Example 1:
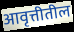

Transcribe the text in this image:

आवृत्तीतील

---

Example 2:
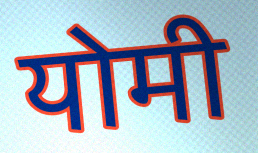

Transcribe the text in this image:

योमी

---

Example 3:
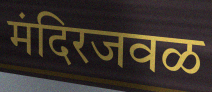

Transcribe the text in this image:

मंदिरजवळ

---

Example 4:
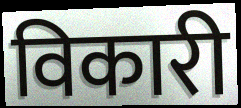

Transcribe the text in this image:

विकारी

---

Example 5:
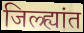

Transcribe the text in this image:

जिल्ह्यांत